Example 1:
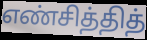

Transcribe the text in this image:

எண்சித்தித்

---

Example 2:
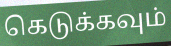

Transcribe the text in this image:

கெடுக்கவும்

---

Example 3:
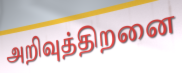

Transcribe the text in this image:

அறிவுத்திறனை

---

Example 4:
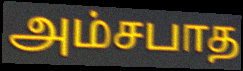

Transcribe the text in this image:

அம்சபாத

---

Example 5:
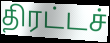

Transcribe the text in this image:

திரட்டச்